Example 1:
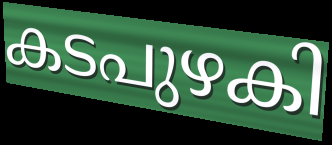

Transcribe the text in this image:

കടപുഴകി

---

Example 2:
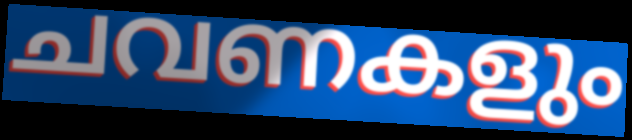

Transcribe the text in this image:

ചവണകളും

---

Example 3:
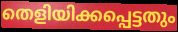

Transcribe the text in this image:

തെളിയിക്കപ്പെട്ടതും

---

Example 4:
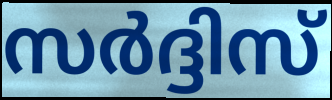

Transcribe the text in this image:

സർദ്ദിസ്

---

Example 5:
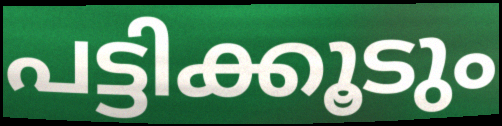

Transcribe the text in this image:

പട്ടിക്കൂടും